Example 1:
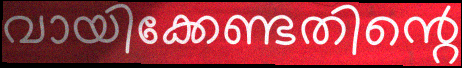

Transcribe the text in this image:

വായിക്കേണ്ടതിന്റെ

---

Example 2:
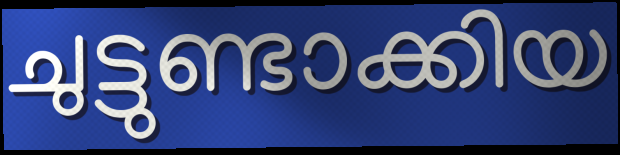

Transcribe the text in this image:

ചുട്ടുണ്ടാക്കിയ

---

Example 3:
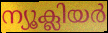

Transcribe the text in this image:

ന്യൂക്ലിയർ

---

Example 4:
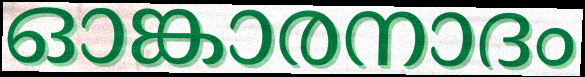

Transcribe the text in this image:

ഓങ്കാരനാദം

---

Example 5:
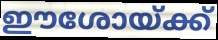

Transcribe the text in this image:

ഈശോയ്ക്ക്